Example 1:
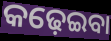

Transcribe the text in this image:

କଢ଼େଇବା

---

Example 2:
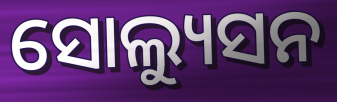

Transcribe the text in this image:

ସୋଲ୍ୟୁସନ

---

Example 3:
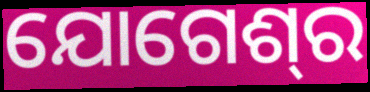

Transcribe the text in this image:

ଯୋଗେଶ୍‍ର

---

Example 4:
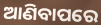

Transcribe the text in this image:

ଆଣିବାପରେ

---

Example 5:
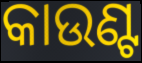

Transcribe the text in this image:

କାଉଣ୍ଟ